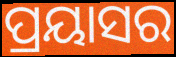
ପ୍ରୟାସର